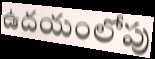
ఉదయంలోపు